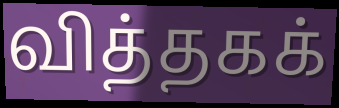
வித்தகக்